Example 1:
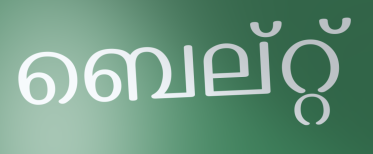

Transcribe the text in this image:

ബെല്റ്റ്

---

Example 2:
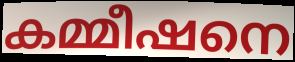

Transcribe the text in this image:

കമ്മീഷനെ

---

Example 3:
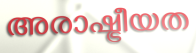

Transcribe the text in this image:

അരാഷ്ട്രീയത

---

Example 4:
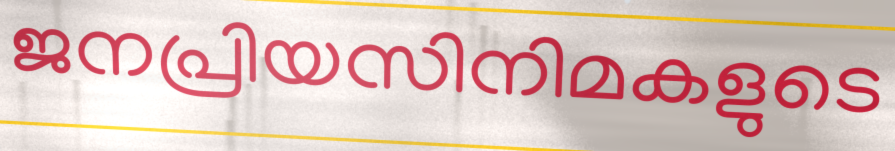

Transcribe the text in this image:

ജനപ്രിയസിനിമകളുടെ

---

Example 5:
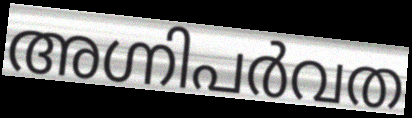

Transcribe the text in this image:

അഗ്നിപർവത